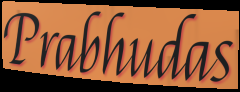
Prabhudas